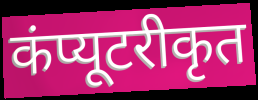
कंप्यूटरीकृत